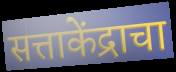
सत्ताकेंद्राचा